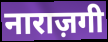
नाराज़गी